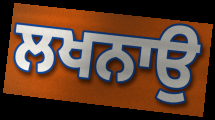
ਲਖਨਾਉ